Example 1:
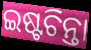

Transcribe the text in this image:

ଇଷ୍ଟଚିନ୍ତା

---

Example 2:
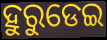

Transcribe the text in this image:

ହୁରୁଡେଇ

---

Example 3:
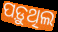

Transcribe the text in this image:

ପଡ଼ୁଥିଲ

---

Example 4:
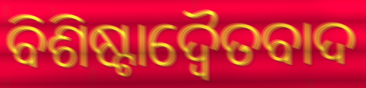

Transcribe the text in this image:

ବିଶିଷ୍ଟାଦ୍ଵୈତବାଦ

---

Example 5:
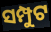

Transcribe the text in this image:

ସମ୍ପୁଟ